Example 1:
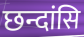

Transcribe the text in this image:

छन्दांसि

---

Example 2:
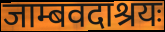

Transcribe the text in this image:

जाम्बवदाश्रयः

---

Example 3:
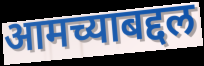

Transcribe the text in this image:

आमच्याबद्दल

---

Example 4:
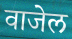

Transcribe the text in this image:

वाजेल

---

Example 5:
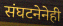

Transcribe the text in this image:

संघटनेनेही